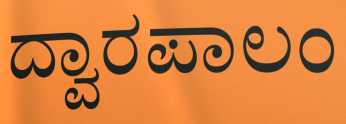
ದ್ವಾರಪಾಲಂ